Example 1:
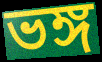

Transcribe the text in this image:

ভঙ্গ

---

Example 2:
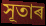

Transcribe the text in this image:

সূতাৰ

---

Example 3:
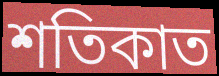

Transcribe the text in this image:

শতিকাত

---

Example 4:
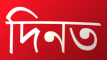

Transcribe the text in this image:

দিনত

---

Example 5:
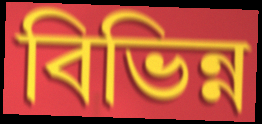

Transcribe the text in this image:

বিভিন্ন